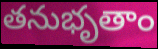
తనుభృతాం